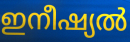
ഇനീഷ്യൽ